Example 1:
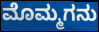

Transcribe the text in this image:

ಮೊಮ್ಮಗನು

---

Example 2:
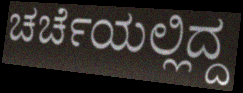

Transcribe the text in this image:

ಚರ್ಚೆಯಲ್ಲಿದ್ದ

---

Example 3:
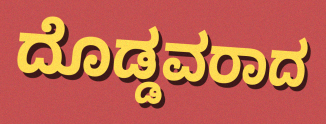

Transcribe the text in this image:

ದೊಡ್ಡವರಾದ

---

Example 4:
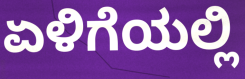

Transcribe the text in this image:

ಏಳಿಗೆಯಲ್ಲಿ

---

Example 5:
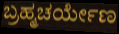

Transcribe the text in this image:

ಬ್ರಹ್ಮಚರ್ಯೇಣ